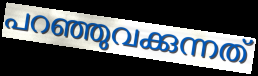
പറഞ്ഞുവക്കുന്നത്